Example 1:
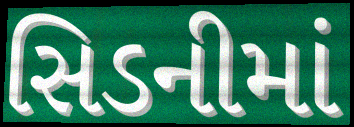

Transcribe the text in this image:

સિડનીમાં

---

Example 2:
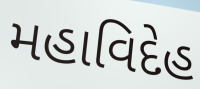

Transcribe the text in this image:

મહાવિદેહ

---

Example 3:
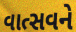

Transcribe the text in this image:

વાત્સવને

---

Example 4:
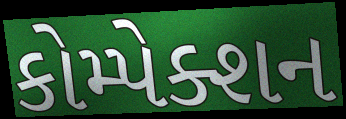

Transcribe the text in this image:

કોમ્પેક્શન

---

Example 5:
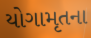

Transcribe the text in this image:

યોગામૃતના